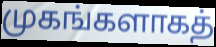
முகங்களாகத்